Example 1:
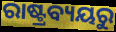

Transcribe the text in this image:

ରାଷ୍ଟ୍ରବ୍ୟୟରୁ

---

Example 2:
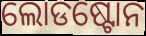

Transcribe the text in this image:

ଲୋଡଷ୍ଟୋନ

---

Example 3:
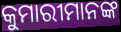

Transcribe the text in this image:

କୁମାରୀମାନଙ୍କ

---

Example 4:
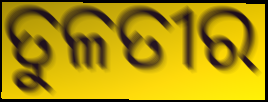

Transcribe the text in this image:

ତୁଳତୀର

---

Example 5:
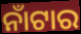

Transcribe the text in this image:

ନାଁଟାର